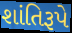
શાંતિરૂપે